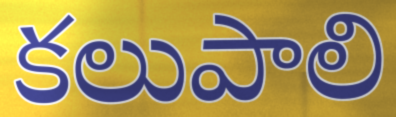
కలుపాలి